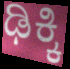
ಢಿಕ್ಕಿ